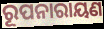
ରୂପନାରାୟଣ